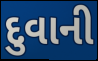
દુવાની